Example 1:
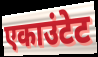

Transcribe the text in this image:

एकाउंटेट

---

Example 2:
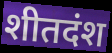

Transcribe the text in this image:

शीतदंश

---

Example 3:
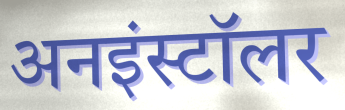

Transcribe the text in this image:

अनइंस्टॉलर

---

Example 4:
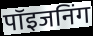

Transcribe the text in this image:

पॉइजनिंग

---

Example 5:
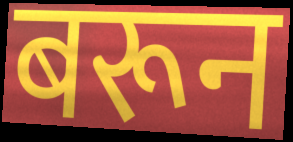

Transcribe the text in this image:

बरून